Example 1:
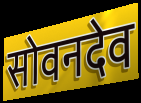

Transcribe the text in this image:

सोवनदेव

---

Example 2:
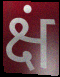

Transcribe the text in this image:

क्षं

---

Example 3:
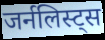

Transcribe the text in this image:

जर्नलिस्ट्स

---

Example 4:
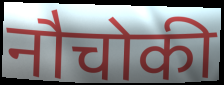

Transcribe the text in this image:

नौचोकी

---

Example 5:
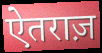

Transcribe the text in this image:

ऐतराज़